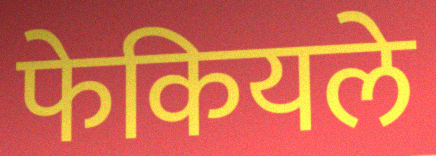
फेकियले